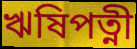
ঋষিপত্নী